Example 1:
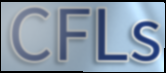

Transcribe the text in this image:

CFLs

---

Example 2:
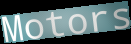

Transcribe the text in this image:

Motors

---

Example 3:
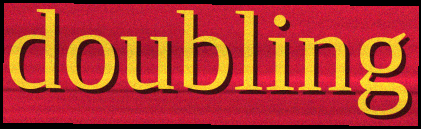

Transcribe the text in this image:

doubling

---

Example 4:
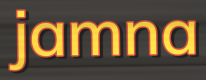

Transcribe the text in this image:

jamna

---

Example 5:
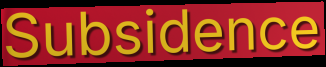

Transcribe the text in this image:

Subsidence